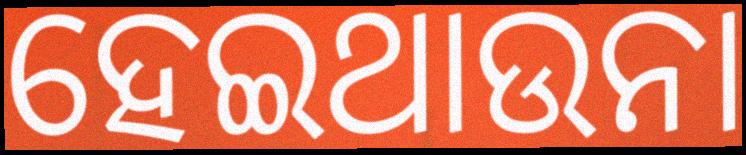
ହେଇଥାଉନା